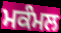
ਮਕੰਮਲ